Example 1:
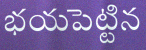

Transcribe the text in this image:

భయపెట్టిన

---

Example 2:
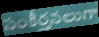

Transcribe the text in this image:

సంకీర్తనలుగా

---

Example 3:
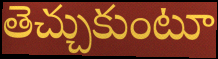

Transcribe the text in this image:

తెచ్చుకుంటూ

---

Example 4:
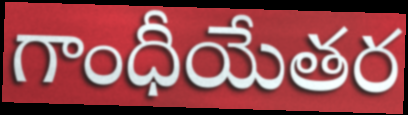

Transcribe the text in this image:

గాంధీయేతర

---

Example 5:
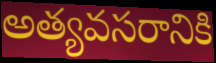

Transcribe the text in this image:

అత్యవసరానికి